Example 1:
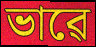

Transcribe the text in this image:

ভাৱে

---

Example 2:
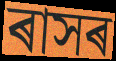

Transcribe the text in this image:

ৰাসৰ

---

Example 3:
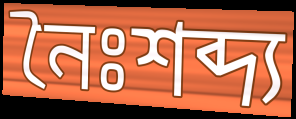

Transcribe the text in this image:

নৈঃশব্দ্য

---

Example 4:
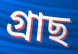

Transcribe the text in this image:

গ্ৰাছ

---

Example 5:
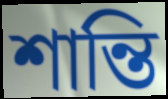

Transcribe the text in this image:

শান্তি